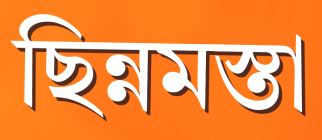
ছিন্নমস্তা